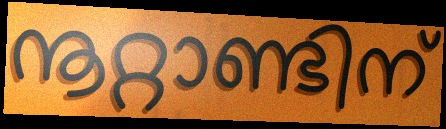
നൂറ്റാണ്ടിന്